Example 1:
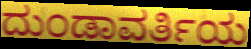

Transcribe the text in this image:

ದುಂಡಾವರ್ತಿಯ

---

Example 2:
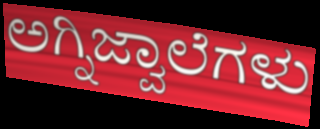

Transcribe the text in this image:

ಅಗ್ನಿಜ್ವಾಲೆಗಳು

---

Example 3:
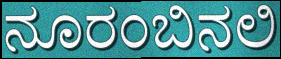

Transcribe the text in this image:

ನೂರಂಬಿನಲಿ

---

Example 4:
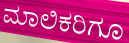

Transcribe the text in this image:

ಮಾಲಿಕರಿಗೂ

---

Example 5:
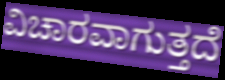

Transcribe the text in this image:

ವಿಚಾರವಾಗುತ್ತದೆ